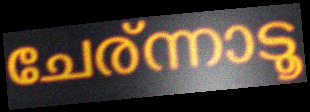
ചേര്ന്നാടൂ